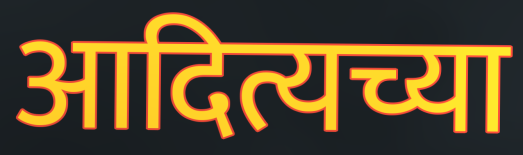
आदित्यच्या